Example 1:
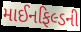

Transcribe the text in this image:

માઈનફિલ્ડની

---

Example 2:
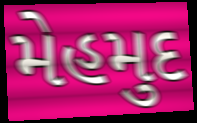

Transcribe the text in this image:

મેહમુદ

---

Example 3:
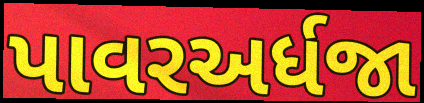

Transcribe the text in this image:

પાવરઅર્ધજા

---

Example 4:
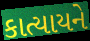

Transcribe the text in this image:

કાત્યાયને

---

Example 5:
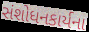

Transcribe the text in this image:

સંશોધનકાર્યના